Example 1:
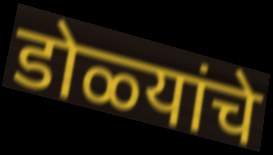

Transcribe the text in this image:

डोळ्यांचे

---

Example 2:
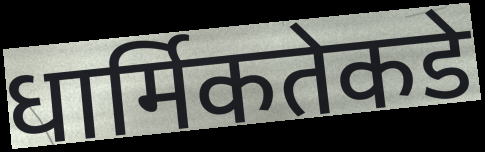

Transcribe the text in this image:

धार्मिकतेकडे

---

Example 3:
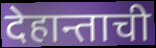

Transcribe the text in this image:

देहान्ताची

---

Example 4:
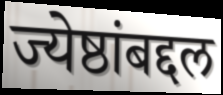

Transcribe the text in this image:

ज्येष्ठांबद्दल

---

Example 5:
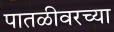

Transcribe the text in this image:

पातळीवरच्या